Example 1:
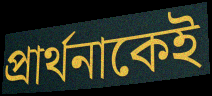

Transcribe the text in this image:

প্রার্থনাকেই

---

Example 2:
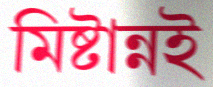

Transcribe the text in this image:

মিষ্টান্নই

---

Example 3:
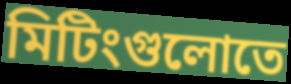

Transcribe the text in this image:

মিটিংগুলোতে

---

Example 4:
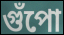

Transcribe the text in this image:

গুঁপো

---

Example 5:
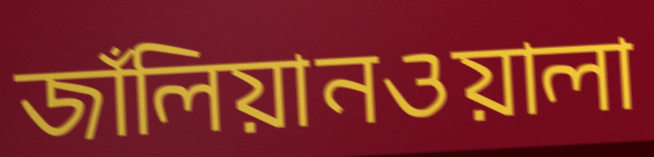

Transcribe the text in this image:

জাঁলিয়ানওয়ালা